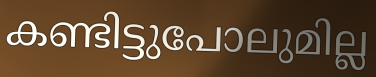
കണ്ടിട്ടുപോലുമില്ല